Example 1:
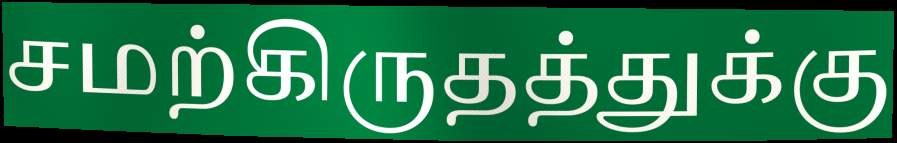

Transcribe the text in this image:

சமற்கிருதத்துக்கு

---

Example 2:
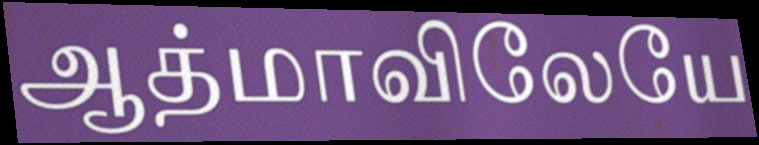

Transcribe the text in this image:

ஆத்மாவிலேயே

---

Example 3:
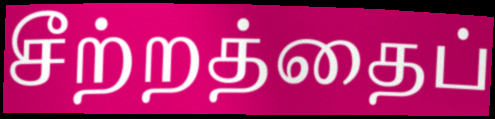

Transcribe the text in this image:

சீற்றத்தைப்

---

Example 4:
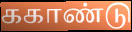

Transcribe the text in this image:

ககாண்டு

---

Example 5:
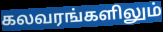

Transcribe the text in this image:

கலவரங்களிலும்